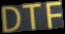
DTF